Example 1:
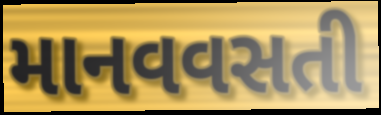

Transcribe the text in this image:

માનવવસતી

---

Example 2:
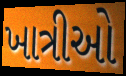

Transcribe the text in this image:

ખાત્રીઓ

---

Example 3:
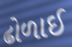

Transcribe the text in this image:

ઢોળાઈ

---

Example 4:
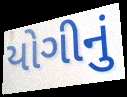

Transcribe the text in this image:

યોગીનું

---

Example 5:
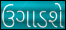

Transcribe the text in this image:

ઉગાડશે